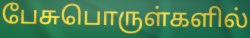
பேசுபொருள்களில்